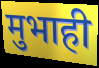
मुभाही